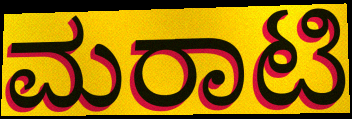
ಮರಾಟಿ